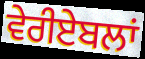
ਵੇਰੀਏਬਲਾਂ